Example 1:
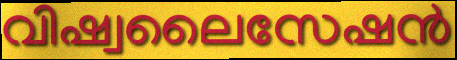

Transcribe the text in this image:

വിഷ്വലൈസേഷൻ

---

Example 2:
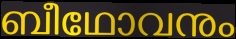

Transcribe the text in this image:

ബീഥോവനും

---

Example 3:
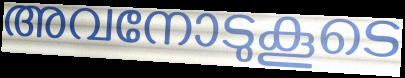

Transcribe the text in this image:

അവനോടുകൂടെ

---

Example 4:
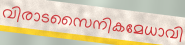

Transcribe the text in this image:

വിരാടസൈനികമേധാവി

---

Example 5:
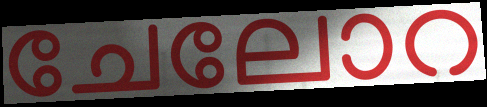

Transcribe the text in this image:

ചേലോറ